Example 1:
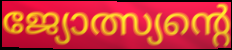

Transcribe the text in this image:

ജ്യോത്സ്യന്റെ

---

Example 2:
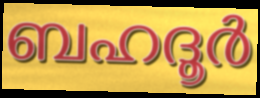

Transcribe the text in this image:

ബഹദൂർ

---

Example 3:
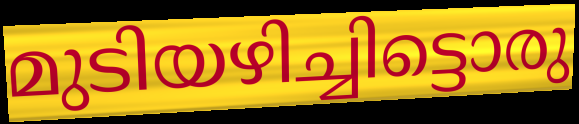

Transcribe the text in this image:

മുടിയഴിച്ചിട്ടൊരു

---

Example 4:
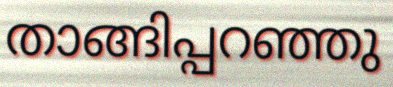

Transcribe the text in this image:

താങ്ങിപ്പറഞ്ഞു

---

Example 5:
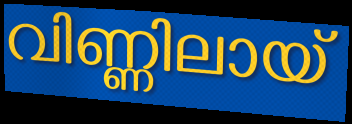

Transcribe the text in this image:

വിണ്ണിലായ്